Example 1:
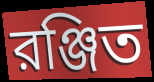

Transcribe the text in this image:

রঞ্জিত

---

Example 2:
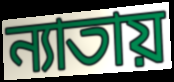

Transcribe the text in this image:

ন্যাতায়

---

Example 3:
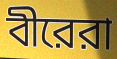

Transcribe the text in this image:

বীরেরা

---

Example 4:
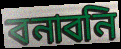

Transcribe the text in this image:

বনাবনি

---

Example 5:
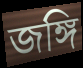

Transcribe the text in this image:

জঙ্গি